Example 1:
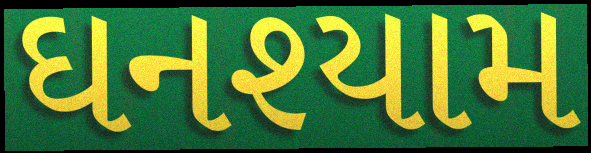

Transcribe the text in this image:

ઘનશ્યામ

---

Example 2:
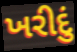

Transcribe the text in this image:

ખરીદું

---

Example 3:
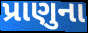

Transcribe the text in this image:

પ્રાણુના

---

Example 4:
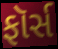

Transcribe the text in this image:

ફૉર્સ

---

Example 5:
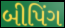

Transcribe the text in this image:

બીપિંગ